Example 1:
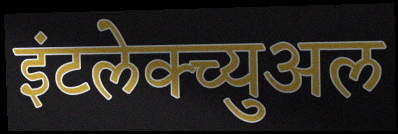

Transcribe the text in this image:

इंटलेक्च्युअल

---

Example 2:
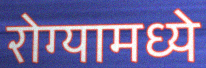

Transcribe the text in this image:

रोग्यामध्ये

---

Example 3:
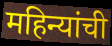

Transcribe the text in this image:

महिन्यांची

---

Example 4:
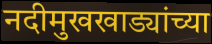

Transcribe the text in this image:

नदीमुखखाड्यांच्या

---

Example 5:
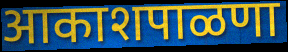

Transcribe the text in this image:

आकाशपाळणा